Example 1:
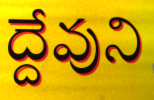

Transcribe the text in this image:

ద్దేవుని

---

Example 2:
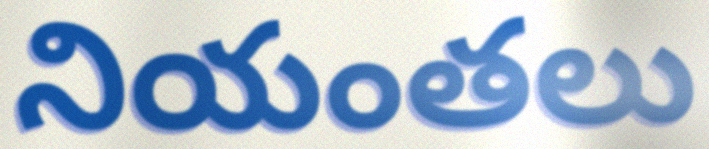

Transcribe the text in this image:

నియంతలు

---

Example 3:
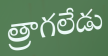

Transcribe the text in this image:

త్రాగలేడు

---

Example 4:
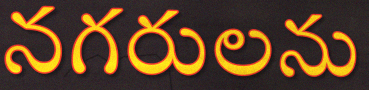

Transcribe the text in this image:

నగరులను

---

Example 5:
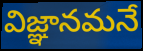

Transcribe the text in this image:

విజ్ఞానమనే